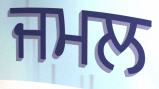
ਜਮਲ